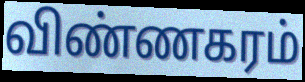
விண்ணகரம்